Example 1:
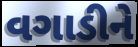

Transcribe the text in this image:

વગાડીને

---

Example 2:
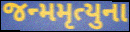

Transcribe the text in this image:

જન્મમૃત્યુના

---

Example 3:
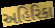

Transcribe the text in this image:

અહિરિકા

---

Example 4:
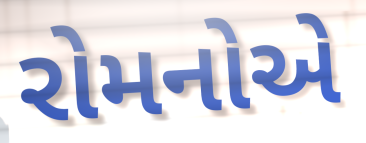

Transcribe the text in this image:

રોમનોએ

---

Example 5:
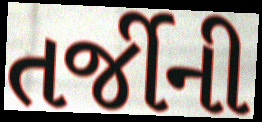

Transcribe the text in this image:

તર્જીની